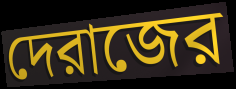
দেরাজের